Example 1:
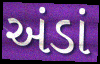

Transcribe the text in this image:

અંડાં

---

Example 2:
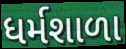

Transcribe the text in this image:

ધર્મશાળા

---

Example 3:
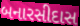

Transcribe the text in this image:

બનારસીદાસ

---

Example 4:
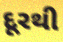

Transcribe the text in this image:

દૂરથી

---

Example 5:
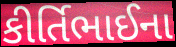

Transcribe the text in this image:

કીર્તિભાઈના